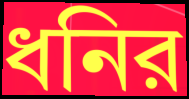
ধনির